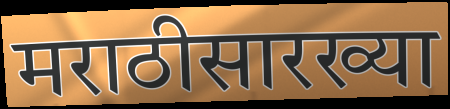
मराठीसारख्या